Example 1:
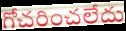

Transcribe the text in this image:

గోచరించలేదు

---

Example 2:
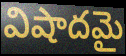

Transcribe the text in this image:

విషాదమై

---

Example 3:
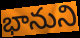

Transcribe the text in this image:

భానుని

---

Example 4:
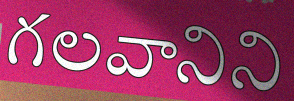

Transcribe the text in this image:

గలవానిని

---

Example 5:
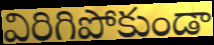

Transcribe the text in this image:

విరిగిపోకుండా